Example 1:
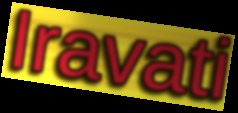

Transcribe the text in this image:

Iravati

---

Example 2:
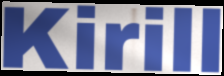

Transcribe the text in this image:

Kirill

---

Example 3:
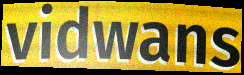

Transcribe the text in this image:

vidwans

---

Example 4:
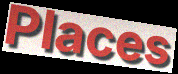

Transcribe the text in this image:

Places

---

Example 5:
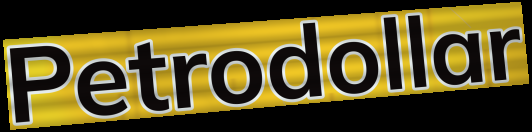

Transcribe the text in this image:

Petrodollar